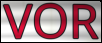
VOR